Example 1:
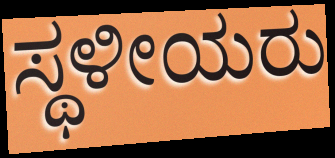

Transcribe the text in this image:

ಸ್ಥಳೀಯರು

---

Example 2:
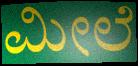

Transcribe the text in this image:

ಮೀಲೆ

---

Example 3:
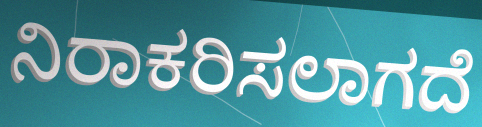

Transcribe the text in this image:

ನಿರಾಕರಿಸಲಾಗದೆ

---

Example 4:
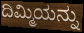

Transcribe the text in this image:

ದಿಮ್ಮಿಯನ್ನು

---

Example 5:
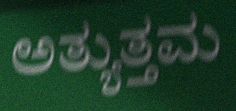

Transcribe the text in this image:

ಅತ್ಯುತ್ತಮ